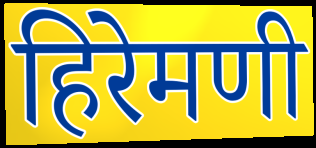
हिरेमणी